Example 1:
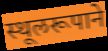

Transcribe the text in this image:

स्थूलरूपाने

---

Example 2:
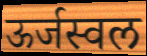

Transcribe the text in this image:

ऊर्जस्वल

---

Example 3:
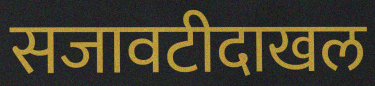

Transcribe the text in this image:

सजावटीदाखल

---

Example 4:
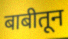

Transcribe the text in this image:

बाबीतून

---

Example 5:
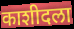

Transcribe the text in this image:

काशीदला